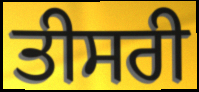
ਤੀਸਰੀ